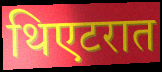
थिएटरात